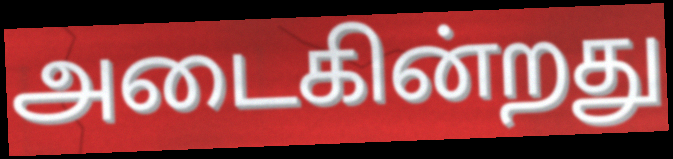
அடைகின்றது